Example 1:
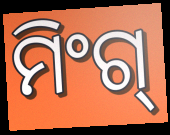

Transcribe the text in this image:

ମିଂଗ୍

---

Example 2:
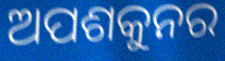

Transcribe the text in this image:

ଅପଶକୁନର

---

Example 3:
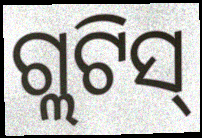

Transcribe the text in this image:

ଗ୍ଲଟିସ୍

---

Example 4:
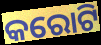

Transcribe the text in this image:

କରୋଟି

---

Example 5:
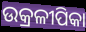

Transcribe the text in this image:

ଉକ୍ରଳୀପିକା